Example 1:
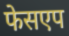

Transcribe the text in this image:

फेसएप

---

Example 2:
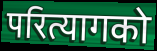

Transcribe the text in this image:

परित्यागको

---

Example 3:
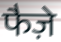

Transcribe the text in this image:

फैज़े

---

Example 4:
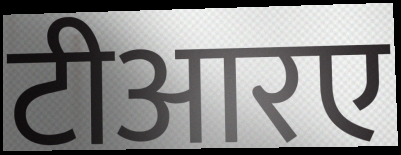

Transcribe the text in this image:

टीआरए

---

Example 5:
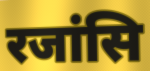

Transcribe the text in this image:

रजांसि